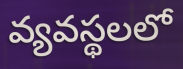
వ్యవస్థలలో